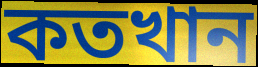
কতখান